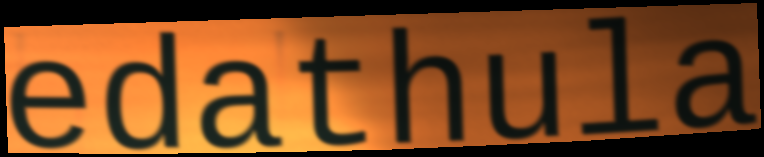
edathula